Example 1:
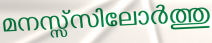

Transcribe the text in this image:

മനസ്സ്സിലോർത്തു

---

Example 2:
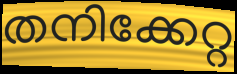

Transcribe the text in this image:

തനിക്കേറ്റ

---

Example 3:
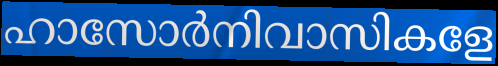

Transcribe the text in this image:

ഹാസോർനിവാസികളേ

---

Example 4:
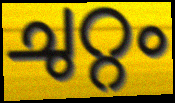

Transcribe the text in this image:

ചുറ്റം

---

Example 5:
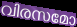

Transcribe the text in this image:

വിരസമോ